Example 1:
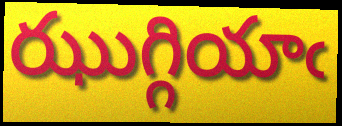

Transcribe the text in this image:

ఝుగ్గియాఁ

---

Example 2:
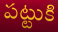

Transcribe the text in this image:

పట్టుకి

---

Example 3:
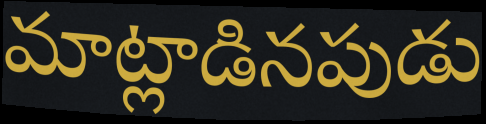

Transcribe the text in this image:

మాట్లాడినపుడు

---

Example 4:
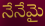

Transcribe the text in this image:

నేనేమై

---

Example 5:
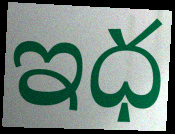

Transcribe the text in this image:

ఇధ